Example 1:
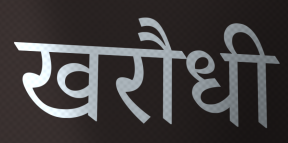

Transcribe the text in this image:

खरौधी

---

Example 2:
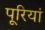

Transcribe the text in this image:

पूरियां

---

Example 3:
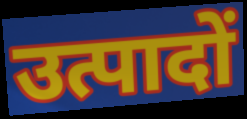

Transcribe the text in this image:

उत्पादों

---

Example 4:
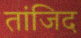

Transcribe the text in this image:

तांजिद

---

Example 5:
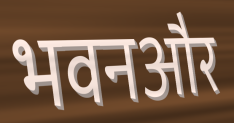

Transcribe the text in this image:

भवनऔर